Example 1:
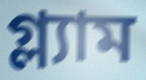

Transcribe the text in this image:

গ্ল্যাম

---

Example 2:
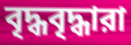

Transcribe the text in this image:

বৃদ্ধবৃদ্ধারা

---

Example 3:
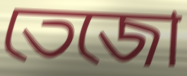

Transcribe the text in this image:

তেজো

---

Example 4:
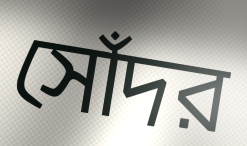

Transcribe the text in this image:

সোঁদর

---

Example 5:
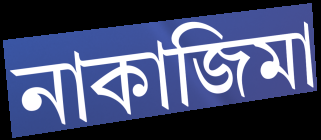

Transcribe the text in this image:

নাকাজিমা